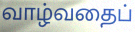
வாழ்வதைப்